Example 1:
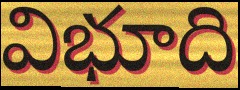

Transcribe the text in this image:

విభూది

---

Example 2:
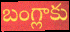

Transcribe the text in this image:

బంగ్లాకు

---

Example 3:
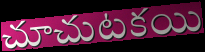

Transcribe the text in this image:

చూచుటకయి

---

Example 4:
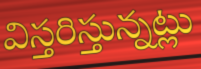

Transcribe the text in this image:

విస్తరిస్తున్నట్లు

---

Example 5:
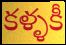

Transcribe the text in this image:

కళ్ళకీ